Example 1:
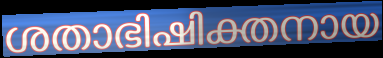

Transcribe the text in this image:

ശതാഭിഷിക്തനായ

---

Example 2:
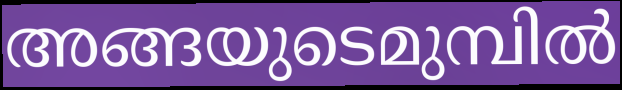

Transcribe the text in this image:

അങ്ങയുടെമുമ്പിൽ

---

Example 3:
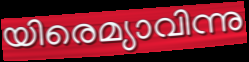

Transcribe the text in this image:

യിരെമ്യാവിന്നു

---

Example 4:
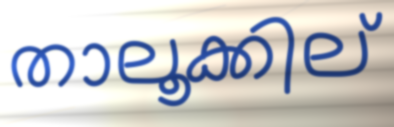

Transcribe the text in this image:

താലൂക്കില്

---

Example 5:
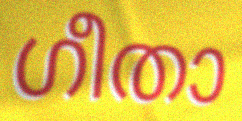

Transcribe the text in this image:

ഗീതാ